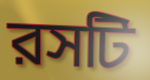
রসটি